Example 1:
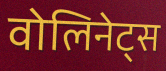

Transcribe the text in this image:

वोलिनेट्स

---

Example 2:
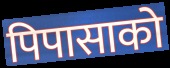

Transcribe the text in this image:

पिपासाको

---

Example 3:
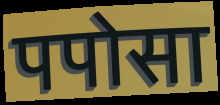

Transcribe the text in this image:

पपोसा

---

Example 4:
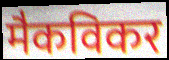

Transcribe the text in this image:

मैकविकर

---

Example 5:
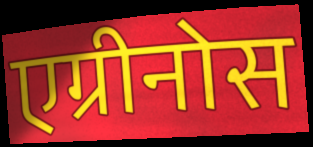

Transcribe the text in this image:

एग्रीनोस